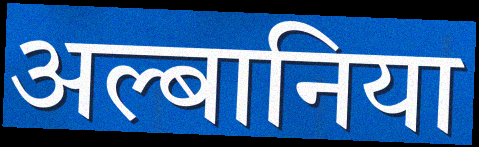
अल्बानिया